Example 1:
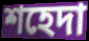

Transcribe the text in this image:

শহেদা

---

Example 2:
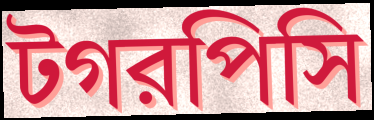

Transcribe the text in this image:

টগরপিসি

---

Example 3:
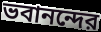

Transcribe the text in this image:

ভবানন্দের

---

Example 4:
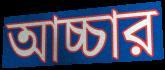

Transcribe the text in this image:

আচ্চার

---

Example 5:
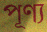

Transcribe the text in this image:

পূণ্য